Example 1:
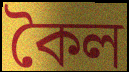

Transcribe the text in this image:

কৈল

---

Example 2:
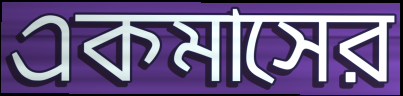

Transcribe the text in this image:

একমাসের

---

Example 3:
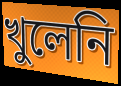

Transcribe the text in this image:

খুলেনি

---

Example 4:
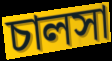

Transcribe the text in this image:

চালসা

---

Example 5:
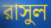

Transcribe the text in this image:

রাসুল